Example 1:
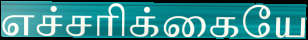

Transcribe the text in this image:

எச்சரிக்கையே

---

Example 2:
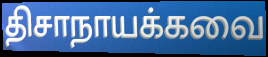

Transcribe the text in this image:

திசாநாயக்கவை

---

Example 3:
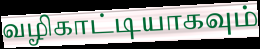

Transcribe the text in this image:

வழிகாட்டியாகவும்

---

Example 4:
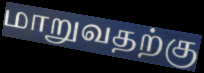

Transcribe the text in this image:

மாறுவதற்கு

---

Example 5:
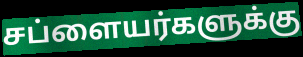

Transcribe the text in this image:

சப்ளையர்களுக்கு